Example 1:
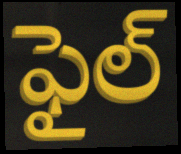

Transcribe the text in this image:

ఫైల్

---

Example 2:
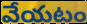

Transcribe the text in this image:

వేయటం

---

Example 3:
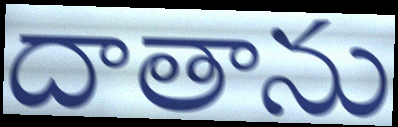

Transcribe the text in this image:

దాతాను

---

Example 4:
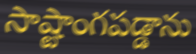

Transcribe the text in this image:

సాష్టాంగపడ్డాను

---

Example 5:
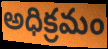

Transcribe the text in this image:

అధిక్రమం